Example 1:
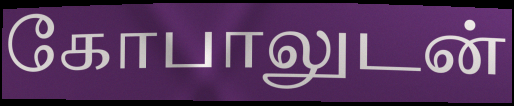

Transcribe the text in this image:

கோபாலுடன்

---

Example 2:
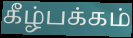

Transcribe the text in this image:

கீழ்பக்கம்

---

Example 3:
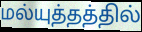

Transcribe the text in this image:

மல்யுத்தத்தில்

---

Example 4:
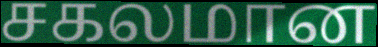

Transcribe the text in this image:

சகலமான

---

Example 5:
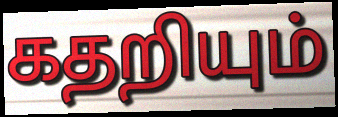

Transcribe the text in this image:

கதறியும்